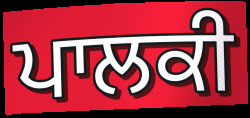
ਪਾਲਕੀ